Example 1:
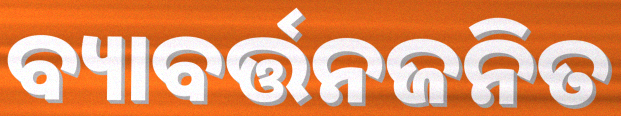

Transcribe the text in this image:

ବ୍ୟାବର୍ତ୍ତନଜନିତ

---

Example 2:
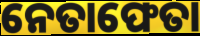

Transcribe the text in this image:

ନେତାଫେତା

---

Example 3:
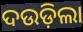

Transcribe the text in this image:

ଦଉଡ଼ିଲା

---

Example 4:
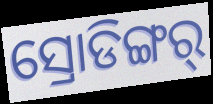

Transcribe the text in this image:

ସ୍ରୋଡିଙ୍ଗର୍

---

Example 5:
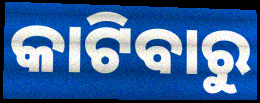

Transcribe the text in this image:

କାଟିବାରୁ